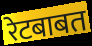
रेटबाबत